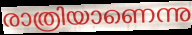
രാത്രിയാണെന്നു